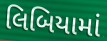
લિબિયામાં